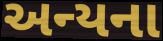
અન્યના